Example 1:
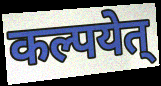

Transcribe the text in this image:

कल्पयेत्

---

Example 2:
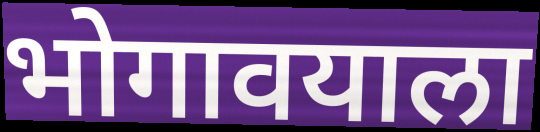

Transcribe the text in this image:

भोगावयाला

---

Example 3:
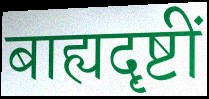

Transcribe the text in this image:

बाह्यदृष्टीं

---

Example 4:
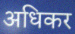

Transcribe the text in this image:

अधिकर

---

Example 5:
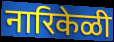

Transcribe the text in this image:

नारिकेळी